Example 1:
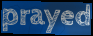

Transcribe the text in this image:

prayed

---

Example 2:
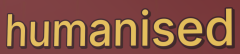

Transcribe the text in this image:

humanised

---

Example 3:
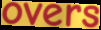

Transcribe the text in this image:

overs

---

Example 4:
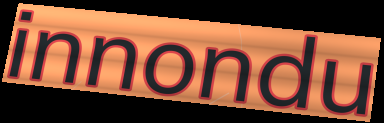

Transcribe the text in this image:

innondu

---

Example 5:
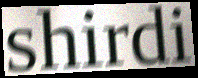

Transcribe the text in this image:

shirdi